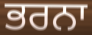
ਭਰਨਾ